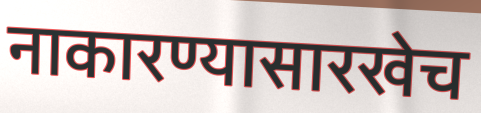
नाकारण्यासारखेच